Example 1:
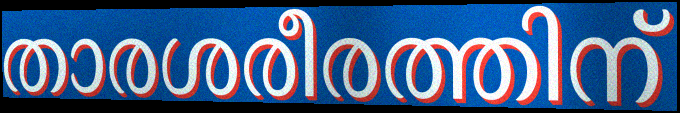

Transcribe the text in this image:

താരശരീരത്തിന്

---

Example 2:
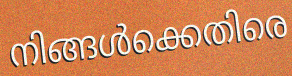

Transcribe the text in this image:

നിങ്ങൾക്കെതിരെ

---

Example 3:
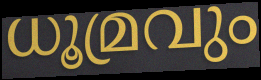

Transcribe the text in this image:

ധൂമ്രവും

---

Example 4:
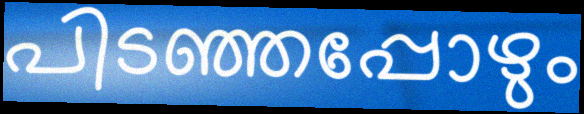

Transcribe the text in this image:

പിടഞ്ഞപ്പോഴും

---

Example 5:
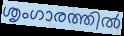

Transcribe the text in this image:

ശൃംഗാരത്തിൽ